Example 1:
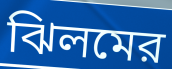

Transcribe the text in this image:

ঝিলমের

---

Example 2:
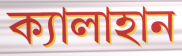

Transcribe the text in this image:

ক্যালাহান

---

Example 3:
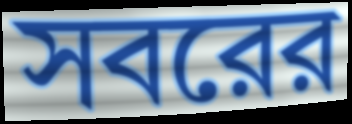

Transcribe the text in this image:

সবরের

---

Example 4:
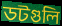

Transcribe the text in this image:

ডটগুলি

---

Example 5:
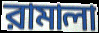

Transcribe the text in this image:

রামালা